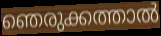
ഞെരുക്കത്താൽ